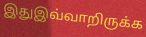
இதுஇவ்வாறிருக்க